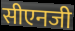
सीएनजी